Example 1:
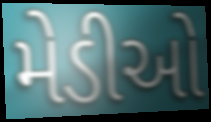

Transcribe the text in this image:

મેડીઓ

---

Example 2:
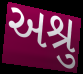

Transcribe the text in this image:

અશ્રુ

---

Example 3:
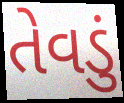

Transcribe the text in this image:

તેવડું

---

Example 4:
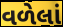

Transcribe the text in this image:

વળેલાં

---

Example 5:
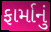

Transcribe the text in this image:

ફાર્માનું